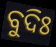
ବୁଦିଃ